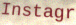
Instagr